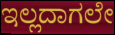
ಇಲ್ಲದಾಗಲೇ